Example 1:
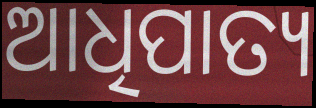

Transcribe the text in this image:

ଆଧିପାତ୍ୟ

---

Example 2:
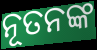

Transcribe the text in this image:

ନୂତନଙ୍କ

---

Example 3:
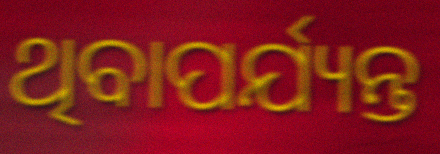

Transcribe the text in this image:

ଥିବାପର୍ଯ୍ୟନ୍ତ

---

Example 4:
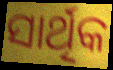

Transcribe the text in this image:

ସାର୍ଥିକ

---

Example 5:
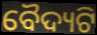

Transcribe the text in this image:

ବୈଦ୍ୟଟି